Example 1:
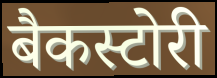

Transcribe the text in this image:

बैकस्टोरी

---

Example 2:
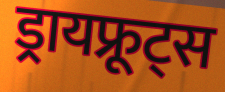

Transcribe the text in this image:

ड्रायफ्रूट्स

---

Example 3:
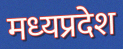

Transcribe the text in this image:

मध्‍यप्रदेश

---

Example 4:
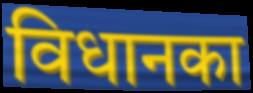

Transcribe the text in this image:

विधानका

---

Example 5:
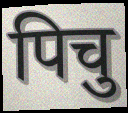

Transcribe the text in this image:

पिचु